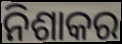
ନିଶାକର